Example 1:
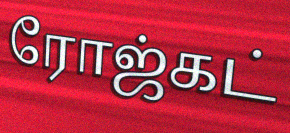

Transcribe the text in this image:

ரோஜ்கட்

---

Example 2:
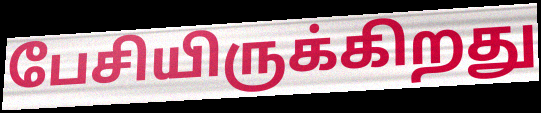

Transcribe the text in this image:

பேசியிருக்கிறது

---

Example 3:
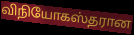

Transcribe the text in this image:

விநியோகஸ்தரான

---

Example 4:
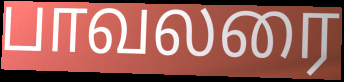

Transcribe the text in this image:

பாவலரை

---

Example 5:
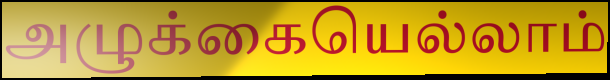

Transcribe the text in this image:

அழுக்கையெல்லாம்